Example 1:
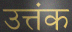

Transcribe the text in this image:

उत्तंक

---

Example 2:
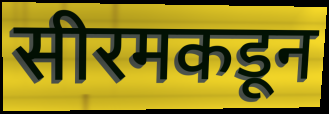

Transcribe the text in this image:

सीरमकडून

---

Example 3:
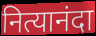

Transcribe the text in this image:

नित्यानंदा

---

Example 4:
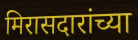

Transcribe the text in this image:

मिरासदारांच्या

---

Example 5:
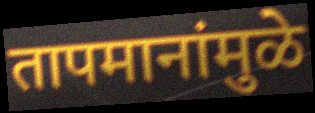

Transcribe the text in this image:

तापमानांमुळे